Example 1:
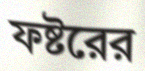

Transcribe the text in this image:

ফষ্টরের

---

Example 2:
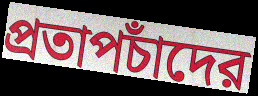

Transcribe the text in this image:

প্রতাপচাঁদের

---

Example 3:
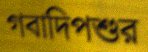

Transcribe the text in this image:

গবাদিপশুর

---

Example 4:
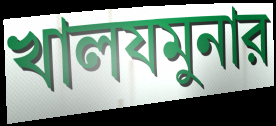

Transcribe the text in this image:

খালযমুনার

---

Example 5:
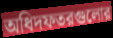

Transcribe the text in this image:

অধিদফতরগুলোর